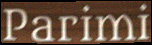
Parimi